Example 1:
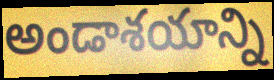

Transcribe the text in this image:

అండాశయాన్ని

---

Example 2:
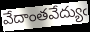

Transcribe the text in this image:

వేదాంతవేద్యుఁ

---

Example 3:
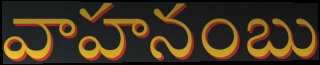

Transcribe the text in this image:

వాహనంబు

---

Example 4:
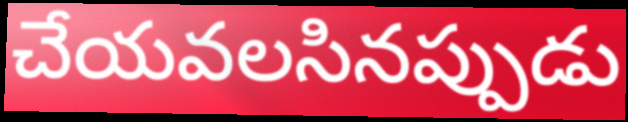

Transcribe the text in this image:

చేయవలసినప్పుడు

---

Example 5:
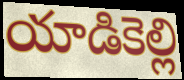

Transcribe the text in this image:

యాడికెల్లి